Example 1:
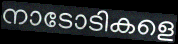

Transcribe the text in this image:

നാടോടികളെ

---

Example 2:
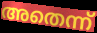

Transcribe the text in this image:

അതെന്ന്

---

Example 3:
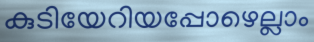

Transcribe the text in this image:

കുടിയേറിയപ്പോഴെല്ലാം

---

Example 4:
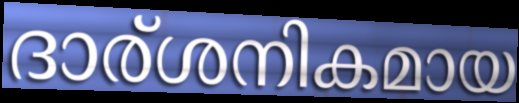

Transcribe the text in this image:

ദാര്ശനികമായ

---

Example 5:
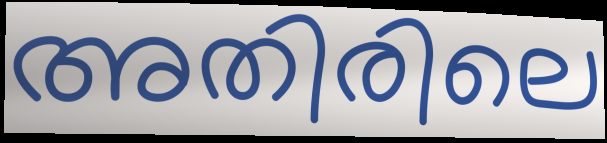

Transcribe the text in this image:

അതിരിലെ